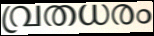
വ്രതധരം